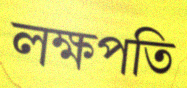
লক্ষপতি